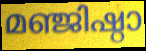
മഞ്ജിഷ്ഠാ